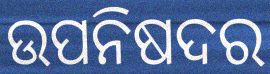
ଉପନିଷଦର